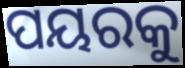
ପୟରକୁ